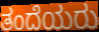
ತಂದೆಯರು